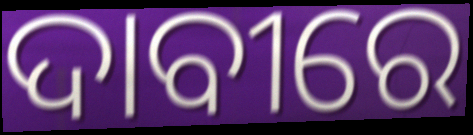
ଦାବୀରେ